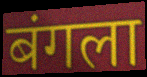
बंगला